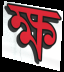
ক্ষ